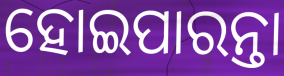
ହୋଇପାରନ୍ତା